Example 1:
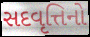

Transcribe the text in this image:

સદવૃત્તિનો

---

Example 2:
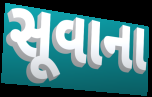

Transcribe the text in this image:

સૂવાના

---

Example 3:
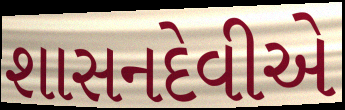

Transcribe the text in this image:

શાસનદેવીએ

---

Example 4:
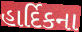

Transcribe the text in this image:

હાર્દિકના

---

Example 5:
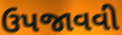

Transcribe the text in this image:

ઉપજાવવી